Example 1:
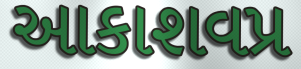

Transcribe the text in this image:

આકાશવપ્ર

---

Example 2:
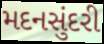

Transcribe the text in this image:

મદનસુંદરી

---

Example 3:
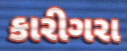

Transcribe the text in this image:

કારીગરા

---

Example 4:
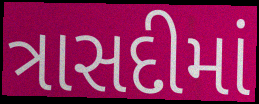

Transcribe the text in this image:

ત્રાસદીમાં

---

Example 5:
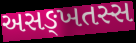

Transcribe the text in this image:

અસઙ્ખતસ્સ